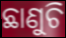
ଛାଣୁଚି